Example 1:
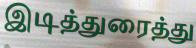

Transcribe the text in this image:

இடித்துரைத்து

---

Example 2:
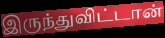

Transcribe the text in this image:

இருந்துவிட்டான்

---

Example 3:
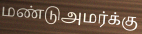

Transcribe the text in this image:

மண்டுஅமர்க்கு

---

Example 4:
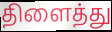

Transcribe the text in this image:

திளைத்து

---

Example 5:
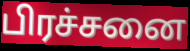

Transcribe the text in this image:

பிரச்சனை